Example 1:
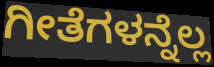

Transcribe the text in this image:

ಗೀತೆಗಳನ್ನೆಲ್ಲ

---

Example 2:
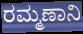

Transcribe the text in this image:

ರಮ್ಮಣಾನಿ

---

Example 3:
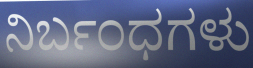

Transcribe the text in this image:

ನಿರ್ಬಂಧಗಳು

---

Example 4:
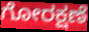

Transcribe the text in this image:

ಗೋರಕ್ಷಣೆ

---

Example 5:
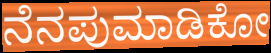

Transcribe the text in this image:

ನೆನಪುಮಾಡಿಕೋ